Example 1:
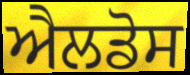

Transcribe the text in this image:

ਐਲਡੋਸ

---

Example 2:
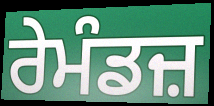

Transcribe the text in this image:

ਰੇਮੰਡਜ਼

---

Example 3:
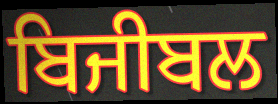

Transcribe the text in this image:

ਬਿਜੀਬਲ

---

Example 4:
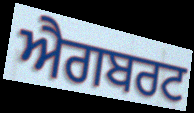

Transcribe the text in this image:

ਐਗਬਰਟ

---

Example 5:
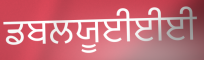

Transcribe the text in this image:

ਡਬਲਯੂਈਈਈ